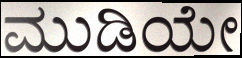
ಮುಡಿಯೇ